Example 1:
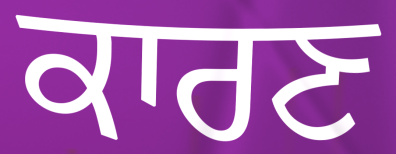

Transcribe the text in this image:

ਕਾਰਣ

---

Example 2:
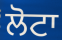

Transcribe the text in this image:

ਲੋਟਾ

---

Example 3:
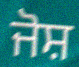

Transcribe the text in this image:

ਜੋਸ਼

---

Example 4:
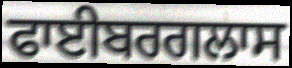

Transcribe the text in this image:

ਫਾਈਬਰਗਲਾਸ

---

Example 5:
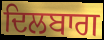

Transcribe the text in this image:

ਦਿਲਬਾਗ